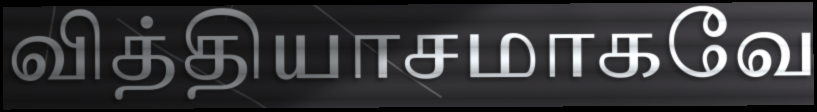
வித்தியாசமாகவே